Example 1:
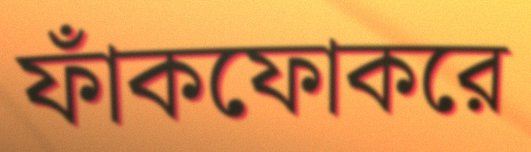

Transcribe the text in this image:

ফাঁকফোকরে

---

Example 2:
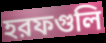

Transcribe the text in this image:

হরফগুলি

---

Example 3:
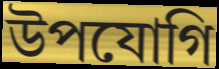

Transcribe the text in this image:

উপযোগি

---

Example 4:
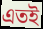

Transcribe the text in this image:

এতই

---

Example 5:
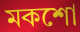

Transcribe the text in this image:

মকশো